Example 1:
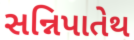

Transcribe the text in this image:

સન્નિપાતેથ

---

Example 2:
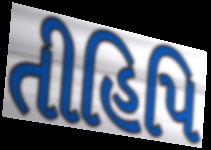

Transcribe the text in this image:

તીહિપિ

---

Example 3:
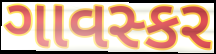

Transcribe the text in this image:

ગાવસ્કર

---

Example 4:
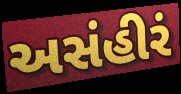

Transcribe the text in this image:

અસંહીરં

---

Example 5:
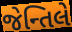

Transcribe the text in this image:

જેન્તિલે